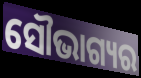
ସୌଭାଗ୍ୟର